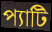
প্যাটি